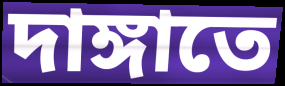
দাঙ্গাতে